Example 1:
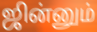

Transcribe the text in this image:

ஜின்னும்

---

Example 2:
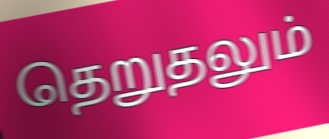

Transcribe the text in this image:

தெறுதலும்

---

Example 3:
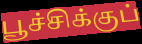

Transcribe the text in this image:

பூச்சிக்குப்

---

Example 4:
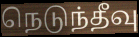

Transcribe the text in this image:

நெடுந்தீவு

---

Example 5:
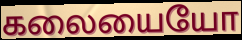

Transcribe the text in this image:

கலையையோ